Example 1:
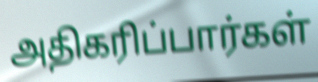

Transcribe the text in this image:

அதிகரிப்பார்கள்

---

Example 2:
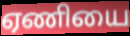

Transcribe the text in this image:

ஏணியை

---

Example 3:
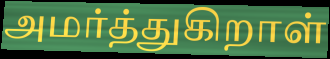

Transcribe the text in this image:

அமர்த்துகிறாள்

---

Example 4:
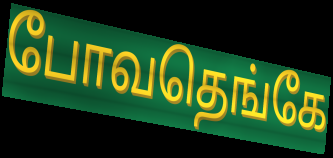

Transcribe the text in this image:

போவதெங்கே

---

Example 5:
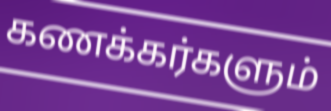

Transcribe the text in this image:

கணக்கர்களும்